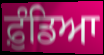
ਫ਼ੁੰਡਿਆ